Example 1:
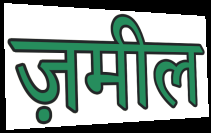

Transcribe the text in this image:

ज़मील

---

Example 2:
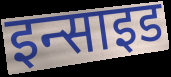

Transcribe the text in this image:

इन्साइड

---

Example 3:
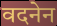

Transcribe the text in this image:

वदनेन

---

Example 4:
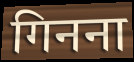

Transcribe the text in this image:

गिनना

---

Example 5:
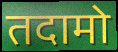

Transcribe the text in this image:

तदामो